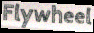
Flywheel